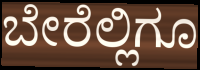
ಬೇರೆಲ್ಲಿಗೂ